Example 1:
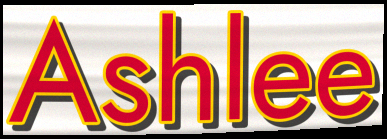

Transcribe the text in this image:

Ashlee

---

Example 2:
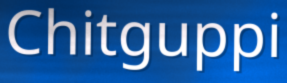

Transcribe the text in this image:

Chitguppi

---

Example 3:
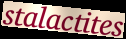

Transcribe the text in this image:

stalactites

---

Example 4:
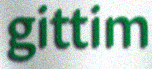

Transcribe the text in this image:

gittim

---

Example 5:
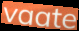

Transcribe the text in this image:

vaate